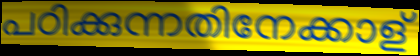
പഠിക്കുന്നതിനേക്കാള്